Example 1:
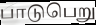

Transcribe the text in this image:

பாடுபெறு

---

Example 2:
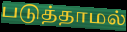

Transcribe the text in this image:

படுத்தாமல்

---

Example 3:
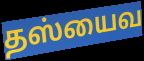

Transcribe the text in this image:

தஸ்யைவ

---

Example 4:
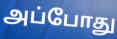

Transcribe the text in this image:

அப்போது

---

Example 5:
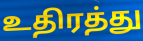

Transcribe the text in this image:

உதிரத்து